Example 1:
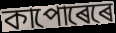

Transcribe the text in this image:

কাপোৰেৰে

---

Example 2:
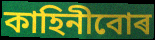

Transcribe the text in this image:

কাহিনীবোৰ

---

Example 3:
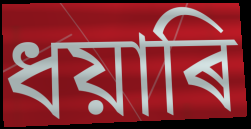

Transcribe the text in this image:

ধয়াৰি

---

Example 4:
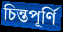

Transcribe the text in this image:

চিন্তপূৰ্ণি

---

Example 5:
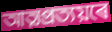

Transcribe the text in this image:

আত্মপ্ৰত্যয়ৰে